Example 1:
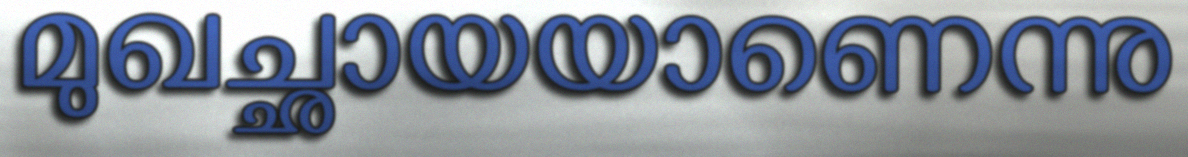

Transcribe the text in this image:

മുഖച്ഛായയാണെന്നു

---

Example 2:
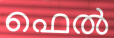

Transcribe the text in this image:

ഫെൽ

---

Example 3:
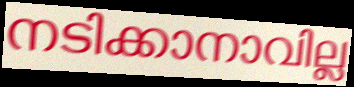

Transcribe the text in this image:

നടിക്കാനാവില്ല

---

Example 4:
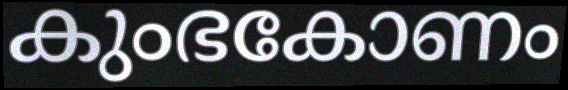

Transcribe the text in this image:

കുംഭകോണം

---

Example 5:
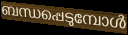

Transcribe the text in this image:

ബന്ധപ്പെടുമ്പോൾ